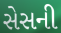
સેસની